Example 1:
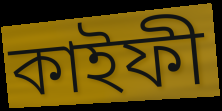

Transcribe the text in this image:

কাইফী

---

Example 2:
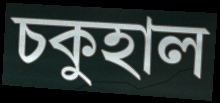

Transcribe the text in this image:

চকুহাল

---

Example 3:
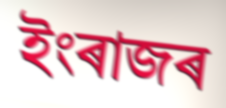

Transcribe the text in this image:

ইংৰাজৰ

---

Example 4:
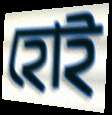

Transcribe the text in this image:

হোই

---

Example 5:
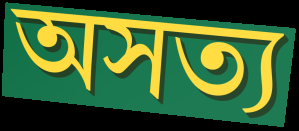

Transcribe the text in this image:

অসত্য